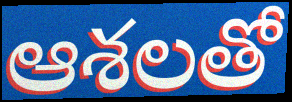
ఆశలతో